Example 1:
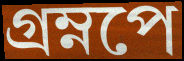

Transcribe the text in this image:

গ্রম্নপে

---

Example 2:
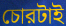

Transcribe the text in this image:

চোরটাই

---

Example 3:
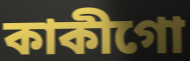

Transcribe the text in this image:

কাকীগো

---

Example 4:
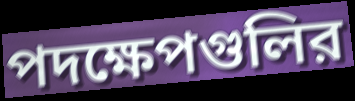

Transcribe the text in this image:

পদক্ষেপগুলির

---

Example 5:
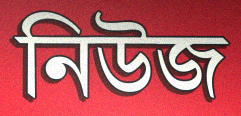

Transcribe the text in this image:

নিউজ